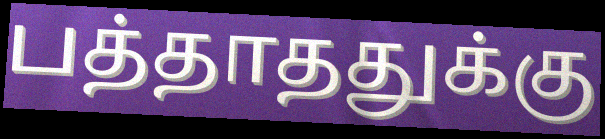
பத்தாததுக்கு